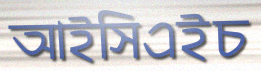
আইসিএইচ